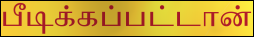
பீடிக்கப்பட்டான்